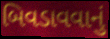
બિવડાવવાનું